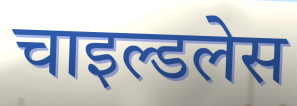
चाइल्डलेस